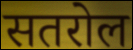
सतरोल